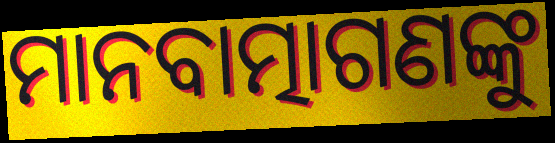
ମାନବାତ୍ମାଗଣଙ୍କୁ